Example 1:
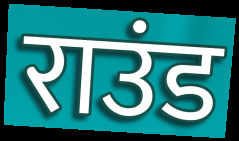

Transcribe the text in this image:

राउंड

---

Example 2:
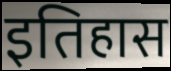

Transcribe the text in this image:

इतिहास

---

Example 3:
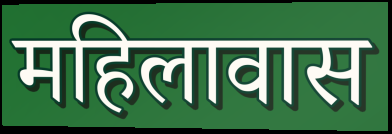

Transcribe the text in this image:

महिलावास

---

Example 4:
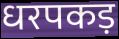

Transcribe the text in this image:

धरपकड़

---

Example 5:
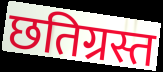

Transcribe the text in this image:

छतिग्रस्त